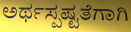
ಅರ್ಥಸ್ಪಷ್ಟತೆಗಾಗಿ